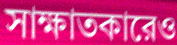
সাক্ষাতকারেও